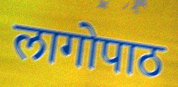
लागोपाठ